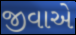
જીવાએ